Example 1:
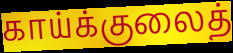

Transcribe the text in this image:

காய்க்குலைத்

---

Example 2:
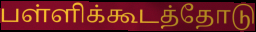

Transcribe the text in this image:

பள்ளிக்கூடத்தோடு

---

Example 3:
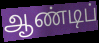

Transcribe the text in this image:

ஆண்டிப்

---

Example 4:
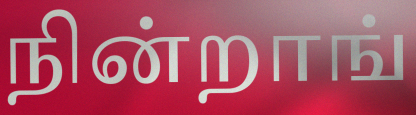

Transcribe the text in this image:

நின்றாங்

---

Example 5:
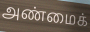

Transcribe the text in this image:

அண்மைக்